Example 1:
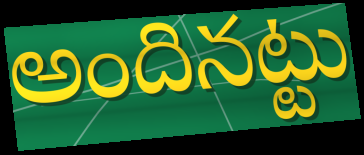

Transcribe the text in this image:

అందినట్టు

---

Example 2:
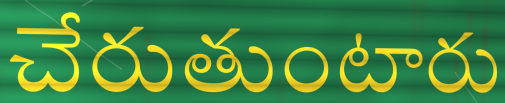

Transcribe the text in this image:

చేరుతుంటారు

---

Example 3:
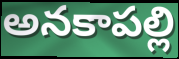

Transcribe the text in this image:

అనకాపల్లి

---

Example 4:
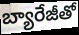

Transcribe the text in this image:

బ్యారేజీతో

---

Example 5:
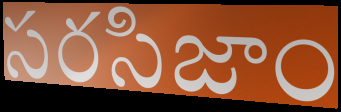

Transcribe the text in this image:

సరసిజాం